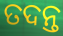
ତଦନ୍ତ